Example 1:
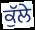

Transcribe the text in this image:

ਕੁੱਲੇ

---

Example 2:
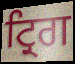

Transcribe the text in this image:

ਟ੍ਰਿਗ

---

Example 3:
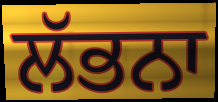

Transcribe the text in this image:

ਲੱਭਨਾ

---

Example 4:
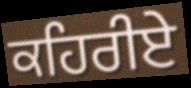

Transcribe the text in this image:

ਕਹਿਰੀਏ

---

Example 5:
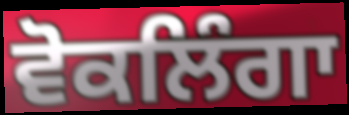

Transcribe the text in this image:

ਵੋਕਲਿੰਗਾ